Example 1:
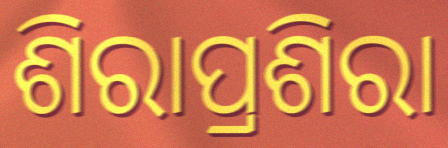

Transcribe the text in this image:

ଶିରାପ୍ରଶିରା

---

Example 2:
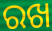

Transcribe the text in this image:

ରଖ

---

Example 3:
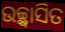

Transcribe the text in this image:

ଉଚ୍ଛ୍ୱାସିତ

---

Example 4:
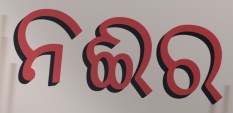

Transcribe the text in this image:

ନଈର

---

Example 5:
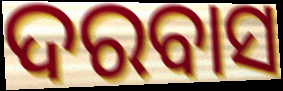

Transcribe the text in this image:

ଦରବାସ